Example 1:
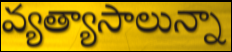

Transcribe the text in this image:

వ్యత్యాసాలున్నా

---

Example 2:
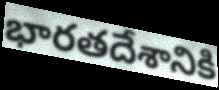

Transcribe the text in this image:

భారతదేశానికి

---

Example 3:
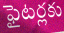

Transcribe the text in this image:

ఫైటర్లకు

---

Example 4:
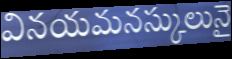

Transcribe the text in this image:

వినయమనస్కులునై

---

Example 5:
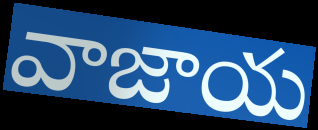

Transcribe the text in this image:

వాజాయ